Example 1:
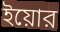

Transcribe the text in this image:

ইয়োর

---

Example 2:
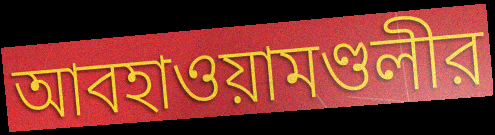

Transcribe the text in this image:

আবহাওয়ামণ্ডলীর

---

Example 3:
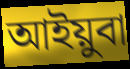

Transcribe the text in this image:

আইয়ুবা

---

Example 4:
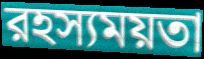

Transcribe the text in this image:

রহস্যময়তা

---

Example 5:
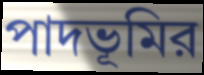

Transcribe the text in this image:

পাদভূমির